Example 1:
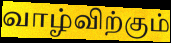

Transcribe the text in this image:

வாழ்விற்கும்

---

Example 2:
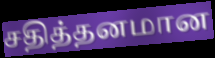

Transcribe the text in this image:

சதித்தனமான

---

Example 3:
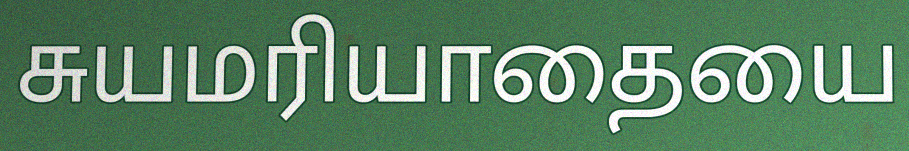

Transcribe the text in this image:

சுயமரியாதையை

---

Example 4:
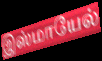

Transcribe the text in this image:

இஸ்மாயேல்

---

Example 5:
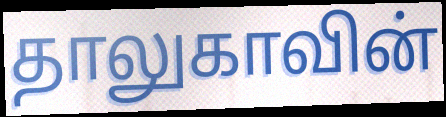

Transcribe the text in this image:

தாலுகாவின்